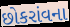
છોકરાંવના